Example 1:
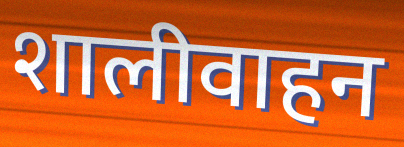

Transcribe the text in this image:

शालीवाहन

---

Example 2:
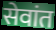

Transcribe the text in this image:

सेवांत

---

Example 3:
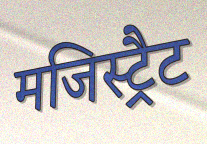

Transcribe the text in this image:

मजिस्ट्रैट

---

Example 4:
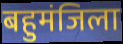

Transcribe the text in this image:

बहुमंजिला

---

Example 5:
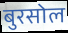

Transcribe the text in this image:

बुरसोल